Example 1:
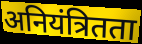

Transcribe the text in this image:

अनियंत्रितता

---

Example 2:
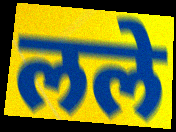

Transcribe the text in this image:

लले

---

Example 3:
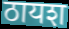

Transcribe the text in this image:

ठायश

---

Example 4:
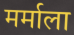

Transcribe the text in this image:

मर्माला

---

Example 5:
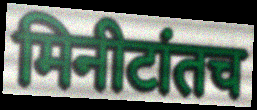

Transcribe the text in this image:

मिनीटांतच